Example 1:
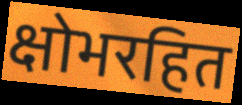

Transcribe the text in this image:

क्षोभरहित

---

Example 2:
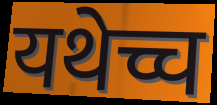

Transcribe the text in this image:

यथेच्च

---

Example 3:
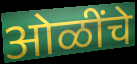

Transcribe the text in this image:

ओळींचे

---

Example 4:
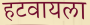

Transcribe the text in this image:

हटवायला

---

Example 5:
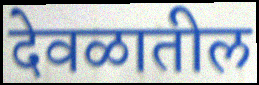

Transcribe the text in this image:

देवळातील